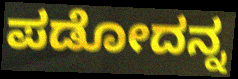
ಪಡೋದನ್ನ